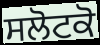
ਸਲੋਟਕੋ